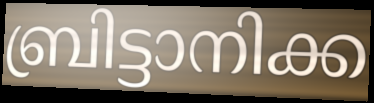
ബ്രിട്ടാനിക്ക